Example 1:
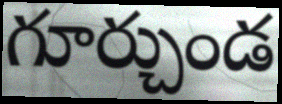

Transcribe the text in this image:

గూర్చుండ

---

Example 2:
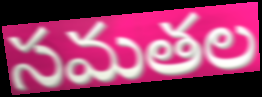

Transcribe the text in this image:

సమతల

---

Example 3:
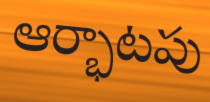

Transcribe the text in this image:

ఆర్భాటపు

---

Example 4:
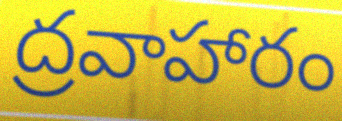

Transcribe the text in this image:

ద్రవాహారం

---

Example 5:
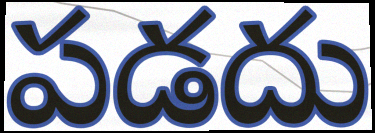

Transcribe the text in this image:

పడదు